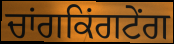
ਚਾਂਗਕਿਂਗਟੇਂਗ